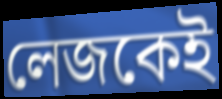
লেজকেই